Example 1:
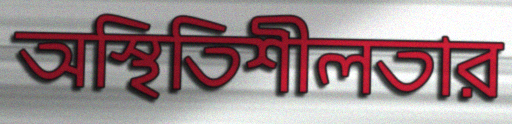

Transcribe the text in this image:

অস্থিতিশীলতার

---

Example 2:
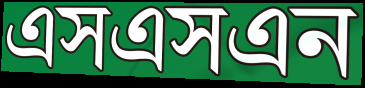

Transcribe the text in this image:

এসএসএন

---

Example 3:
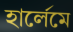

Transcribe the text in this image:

হার্লেমে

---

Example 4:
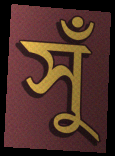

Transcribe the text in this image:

সুঁ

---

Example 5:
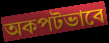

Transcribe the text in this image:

অকপটভাবে